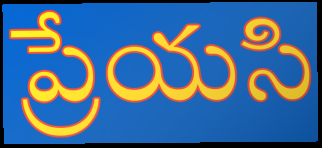
ప్రేయసి